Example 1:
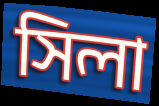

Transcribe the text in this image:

সিলা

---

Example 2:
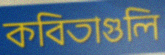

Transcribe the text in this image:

কবিতাগুলি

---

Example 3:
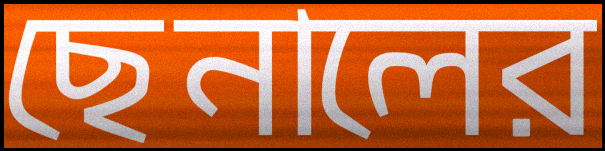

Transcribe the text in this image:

ছেনালের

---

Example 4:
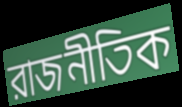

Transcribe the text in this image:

রাজনীতিক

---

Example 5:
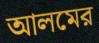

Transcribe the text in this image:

আলমের